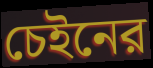
চেইনের